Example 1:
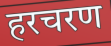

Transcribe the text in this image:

हरचरण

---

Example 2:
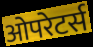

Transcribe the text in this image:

ओपरेटर्स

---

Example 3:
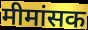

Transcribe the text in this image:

मीमांसक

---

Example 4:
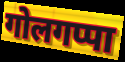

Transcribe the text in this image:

गोलगप्पा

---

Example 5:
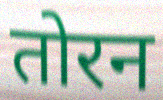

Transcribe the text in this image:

तोरन